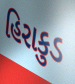
હિરાકુડ